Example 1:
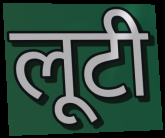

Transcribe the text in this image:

लूटी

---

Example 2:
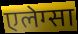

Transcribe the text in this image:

एलेग्सा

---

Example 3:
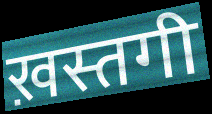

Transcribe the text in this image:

ख़स्तगी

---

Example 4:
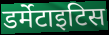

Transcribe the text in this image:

डर्मेटाइटिस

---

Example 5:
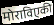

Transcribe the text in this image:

मोराविएकी